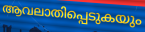
ആവലാതിപ്പെടുകയും